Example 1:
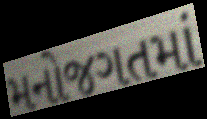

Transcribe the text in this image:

મનોજગતમાં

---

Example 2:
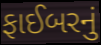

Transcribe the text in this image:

ફાઈબરનું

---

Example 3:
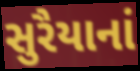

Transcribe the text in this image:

સુરૈયાનાં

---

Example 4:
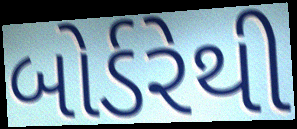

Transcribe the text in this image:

બોર્ડરેથી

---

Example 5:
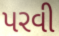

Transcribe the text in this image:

પરવી